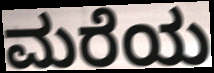
ಮರೆಯ